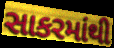
સાકરમાંથી